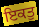
ਇਕਤੁ